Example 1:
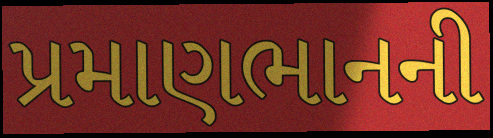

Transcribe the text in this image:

પ્રમાણભાનની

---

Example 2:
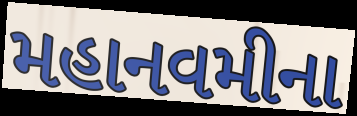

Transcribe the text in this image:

મહાનવમીના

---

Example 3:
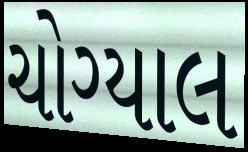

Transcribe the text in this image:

ચોગ્યાલ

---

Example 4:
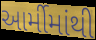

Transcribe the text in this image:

આર્મીમાંથી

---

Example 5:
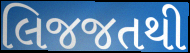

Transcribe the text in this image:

લિજજતથી